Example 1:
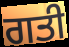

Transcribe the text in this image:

ਗਤੀ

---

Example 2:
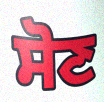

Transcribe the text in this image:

ਸੋਣ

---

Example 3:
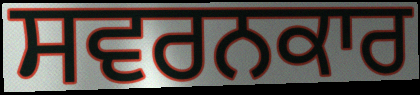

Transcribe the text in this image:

ਸਵਰਨਕਾਰ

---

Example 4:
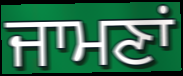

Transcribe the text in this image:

ਜਾਮਣਾਂ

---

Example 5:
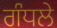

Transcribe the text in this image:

ਗੰਧਲੇ